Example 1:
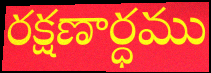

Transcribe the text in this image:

రక్షణార్ధము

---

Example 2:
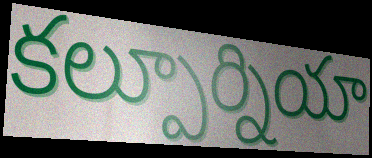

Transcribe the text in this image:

కల్పూర్నియా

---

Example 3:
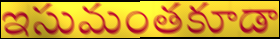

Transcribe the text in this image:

ఇసుమంతకూడా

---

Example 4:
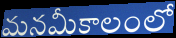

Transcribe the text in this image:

మనమీకాలంలో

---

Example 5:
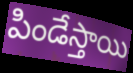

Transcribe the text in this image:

పిండేస్తాయి